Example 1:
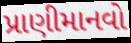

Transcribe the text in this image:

પ્રાણીમાનવો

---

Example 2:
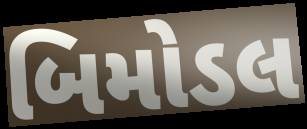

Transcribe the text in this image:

બિમોડલ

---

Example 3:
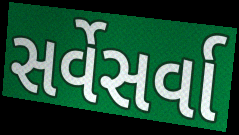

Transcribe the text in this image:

સર્વેસર્વા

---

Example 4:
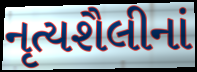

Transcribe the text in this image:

નૃત્યશૈલીનાં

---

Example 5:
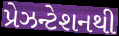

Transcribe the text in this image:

પ્રેઝન્ટેશનથી